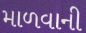
માળવાની